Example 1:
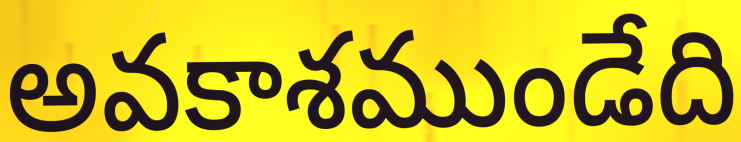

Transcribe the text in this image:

అవకాశముండేది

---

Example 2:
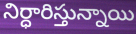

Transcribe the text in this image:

నిర్ధారిస్తున్నాయి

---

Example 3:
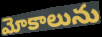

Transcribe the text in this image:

మోకాలును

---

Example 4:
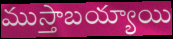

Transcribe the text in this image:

ముస్తాబయ్యాయి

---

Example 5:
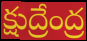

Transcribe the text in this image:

క్షుద్రేంద్ర